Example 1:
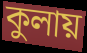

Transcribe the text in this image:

কুলায়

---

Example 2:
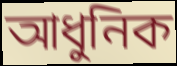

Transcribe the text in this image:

আধুনিক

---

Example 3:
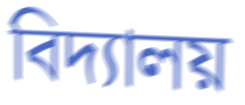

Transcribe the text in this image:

বিদ্যালয়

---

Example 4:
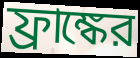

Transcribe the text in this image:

ফ্রাঙ্কের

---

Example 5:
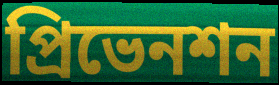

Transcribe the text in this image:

প্রিভেনশন